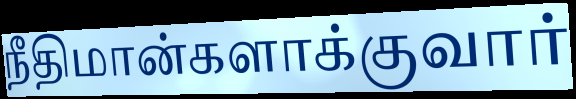
நீதிமான்களாக்குவார்